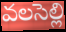
వలసెల్లి